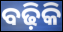
ବଢ଼ିକି